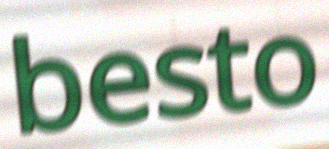
besto